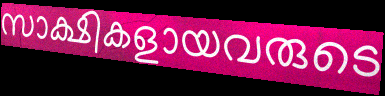
സാക്ഷികളായവരുടെ